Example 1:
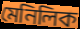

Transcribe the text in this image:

মেনিলিক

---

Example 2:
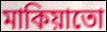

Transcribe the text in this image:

মাকিয়াতো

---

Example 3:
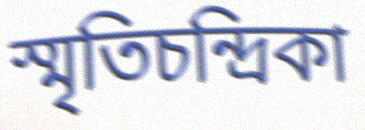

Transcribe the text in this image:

স্মৃতিচন্দ্রিকা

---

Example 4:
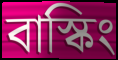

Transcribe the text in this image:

বাস্কিং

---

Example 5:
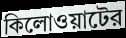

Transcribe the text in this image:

কিলোওয়াটের